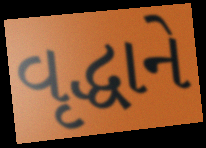
વૃદ્ધાને